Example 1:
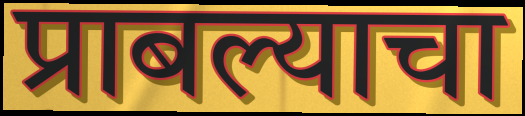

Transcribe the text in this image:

प्राबल्याचा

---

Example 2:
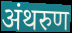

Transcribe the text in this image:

अंथरुण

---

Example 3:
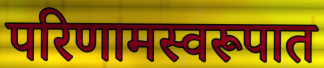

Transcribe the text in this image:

परिणामस्वरूपात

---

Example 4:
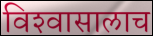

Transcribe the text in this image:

विश्वासालाच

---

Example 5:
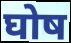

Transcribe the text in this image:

घोष